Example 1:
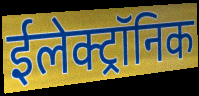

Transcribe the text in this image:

ईलेक्ट्रॉनिक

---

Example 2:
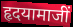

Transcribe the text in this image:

हृदयामाजीं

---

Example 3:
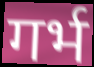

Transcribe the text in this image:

गर्भ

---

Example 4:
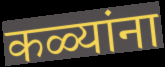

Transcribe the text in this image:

कळ्यांना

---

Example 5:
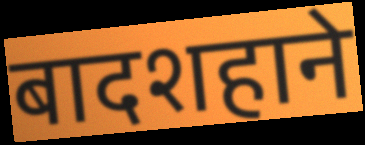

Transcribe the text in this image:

बादशहाने